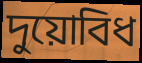
দুয়োবিধ